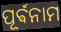
ପୂର୍ଵନାମ